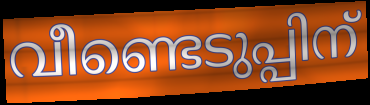
വീണ്ടെടുപ്പിന്